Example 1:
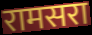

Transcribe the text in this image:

रामसरा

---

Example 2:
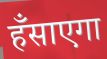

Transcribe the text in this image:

हँसाएगा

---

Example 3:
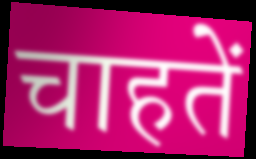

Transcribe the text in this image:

चाहतें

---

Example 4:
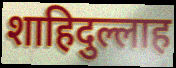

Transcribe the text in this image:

शाहिदुल्लाह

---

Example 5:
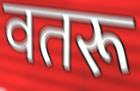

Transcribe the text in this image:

वतरू